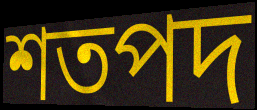
শতপদ